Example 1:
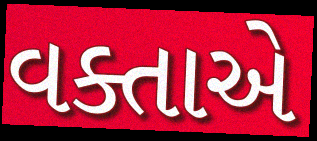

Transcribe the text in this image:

વક્તાએ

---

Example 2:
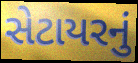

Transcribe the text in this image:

સેટાયરનું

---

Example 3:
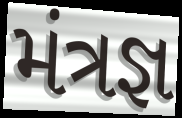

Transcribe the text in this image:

મંત્રજ્ઞ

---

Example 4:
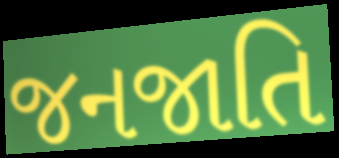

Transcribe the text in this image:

જનજાતિ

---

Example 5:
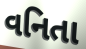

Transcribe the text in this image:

વનિતા